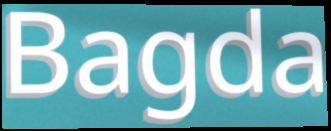
Bagda